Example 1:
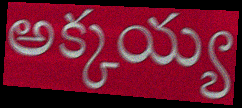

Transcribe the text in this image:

అక్కయ్య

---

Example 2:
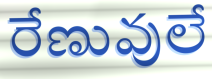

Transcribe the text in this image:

రేణువులే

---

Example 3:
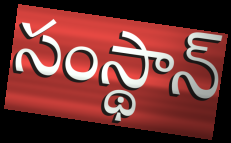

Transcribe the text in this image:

సంస్థాన్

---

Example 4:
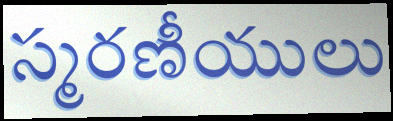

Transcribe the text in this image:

స్మరణీయులు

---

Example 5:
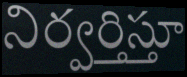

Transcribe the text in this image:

నిర్వర్తిస్తూ